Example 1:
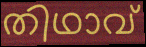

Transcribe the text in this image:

തിഥാവ്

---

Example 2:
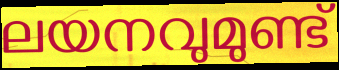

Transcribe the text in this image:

ലയനവുമുണ്ട്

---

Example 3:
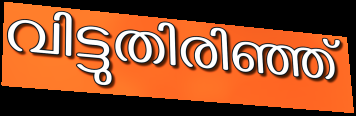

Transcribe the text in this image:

വിട്ടുതിരിഞ്ഞ്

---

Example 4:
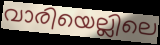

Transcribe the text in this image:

വാരിയെല്ലിലെ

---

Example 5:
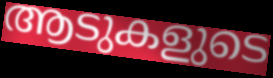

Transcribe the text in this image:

ആടുകളുടെ